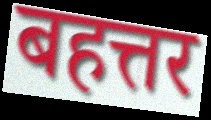
बहत्तर